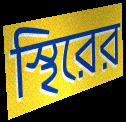
স্থিরের